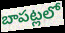
బాపట్లలో